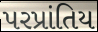
પરપ્રાંતિય